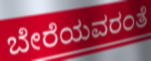
ಬೇರೆಯವರಂತೆ